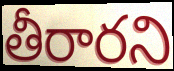
తీరారని